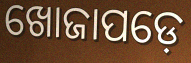
ଖୋଜାପଡ଼େ